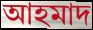
আহমাদ